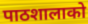
पाठशालाको